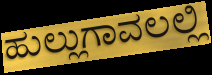
ಹುಲ್ಲುಗಾವಲಲ್ಲಿ